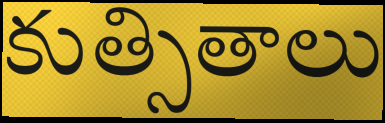
కుత్సితాలు